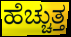
ಹೆಚ್ಚುತ್ತ